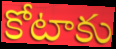
కోటాకు